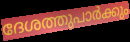
ദേശത്തുപാർക്കും